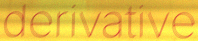
derivative